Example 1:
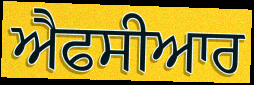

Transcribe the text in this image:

ਐਫਸੀਆਰ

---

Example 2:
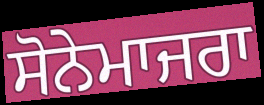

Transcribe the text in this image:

ਸੋਨੇਮਾਜਰਾ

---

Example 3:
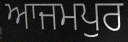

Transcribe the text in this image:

ਆਜਮਪੁਰ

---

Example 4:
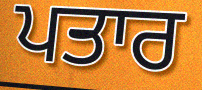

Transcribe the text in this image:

ਪਤਾਰ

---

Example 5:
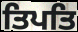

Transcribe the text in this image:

ਤਿਪਤਿ